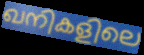
ഖനികളിലെ